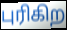
புரிகிற